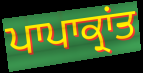
ਪਾਪਾਕ੍ਰਾਂਤ